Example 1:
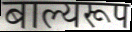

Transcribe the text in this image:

बाल्यरूप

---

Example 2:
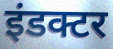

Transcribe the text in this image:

इंडक्टर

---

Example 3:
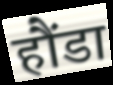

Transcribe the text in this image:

हौंडा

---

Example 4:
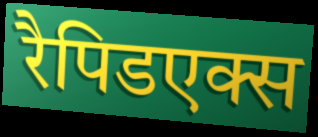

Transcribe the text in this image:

रैपिडएक्स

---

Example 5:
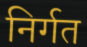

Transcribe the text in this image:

निर्गत